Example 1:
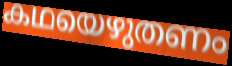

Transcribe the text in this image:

കഥയെഴുതണം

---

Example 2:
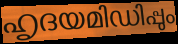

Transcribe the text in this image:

ഹൃദയമിഡിപ്പും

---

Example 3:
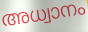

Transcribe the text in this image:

അധ്വാനം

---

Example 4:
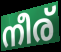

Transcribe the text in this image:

നീര്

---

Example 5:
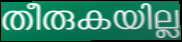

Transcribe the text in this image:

തീരുകയില്ല